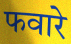
फवारे